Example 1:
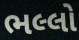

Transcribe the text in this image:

ભલ્લો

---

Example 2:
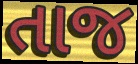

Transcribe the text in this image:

તાજ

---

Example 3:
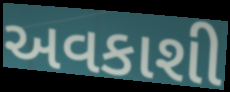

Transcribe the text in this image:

અવકાશી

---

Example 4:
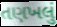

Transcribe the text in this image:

તણખલું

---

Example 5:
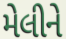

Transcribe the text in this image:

મેલીને